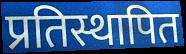
प्रतिस्थापित